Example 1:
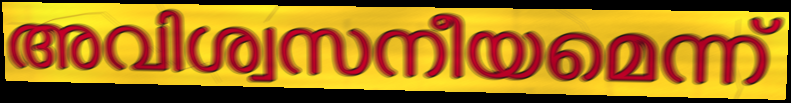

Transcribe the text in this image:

അവിശ്വസനീയമെന്ന്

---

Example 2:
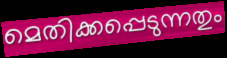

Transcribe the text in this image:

മെതിക്കപ്പെടുന്നതും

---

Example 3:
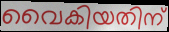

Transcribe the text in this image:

വൈകിയതിന്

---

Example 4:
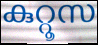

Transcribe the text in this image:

കുറ്റൂസ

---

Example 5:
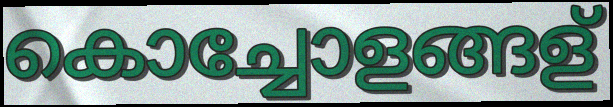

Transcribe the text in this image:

കൊച്ചോളങ്ങള്